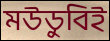
মউডুবিই